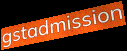
gstadmission